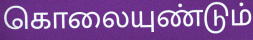
கொலையுண்டும்